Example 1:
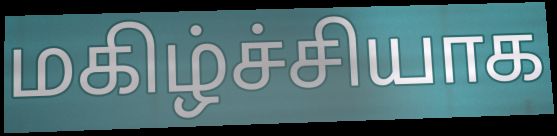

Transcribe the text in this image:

மகிழ்ச்சியாக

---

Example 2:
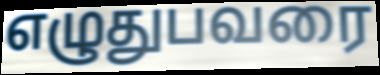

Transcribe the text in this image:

எழுதுபவரை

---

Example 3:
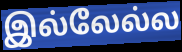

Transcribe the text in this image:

இல்லேல்ல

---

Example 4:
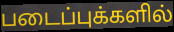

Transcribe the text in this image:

படைப்புக்களில்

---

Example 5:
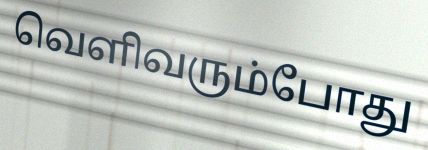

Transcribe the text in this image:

வெளிவரும்போது